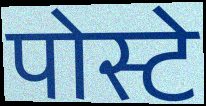
पोस्टे